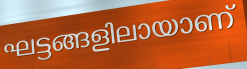
ഘട്ടങ്ങളിലായാണ്